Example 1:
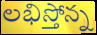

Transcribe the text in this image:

లభిస్తోన్న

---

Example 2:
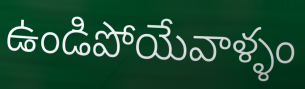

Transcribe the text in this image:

ఉండిపోయేవాళ్ళం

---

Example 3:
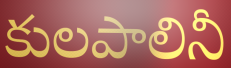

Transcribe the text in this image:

కులపాలినీ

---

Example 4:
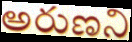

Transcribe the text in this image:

అరుణని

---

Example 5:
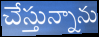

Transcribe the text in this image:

చేస్తున్నాను